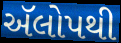
ઍલોપથી